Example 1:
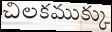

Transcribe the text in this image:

చిలకముక్కు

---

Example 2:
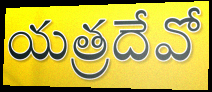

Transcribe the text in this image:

యత్రదేవో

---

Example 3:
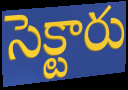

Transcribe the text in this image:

సెక్టారు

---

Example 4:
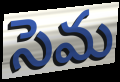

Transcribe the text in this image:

సెమ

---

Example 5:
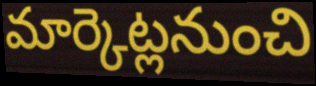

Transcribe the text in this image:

మార్కెట్లనుంచి